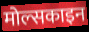
मोल्सकाइन